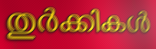
തുർക്കികൾ